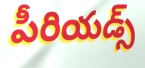
పీరియడ్స్